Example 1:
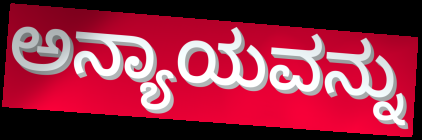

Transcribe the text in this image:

ಅನ್ಯಾಯವನ್ನು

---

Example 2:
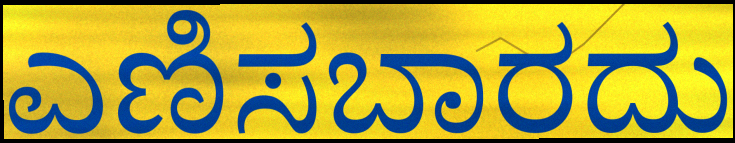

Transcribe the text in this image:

ಎಣಿಸಬಾರದು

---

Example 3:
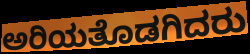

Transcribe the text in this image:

ಅರಿಯತೊಡಗಿದರು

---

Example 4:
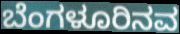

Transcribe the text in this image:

ಬೆಂಗಳೂರಿನವ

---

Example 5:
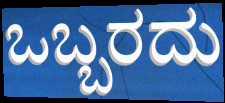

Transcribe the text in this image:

ಒಬ್ಬರದು